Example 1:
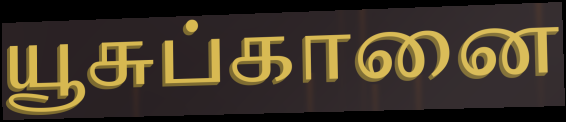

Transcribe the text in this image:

யூசுப்கானை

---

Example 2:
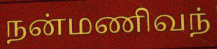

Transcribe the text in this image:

நன்மணிவந்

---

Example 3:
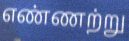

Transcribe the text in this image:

எண்ணற்று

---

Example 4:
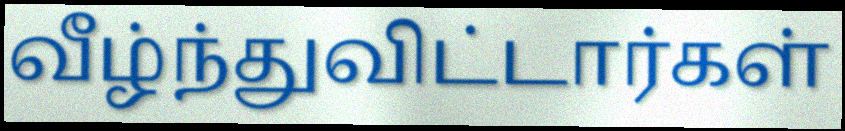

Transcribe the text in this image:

வீழ்ந்துவிட்டார்கள்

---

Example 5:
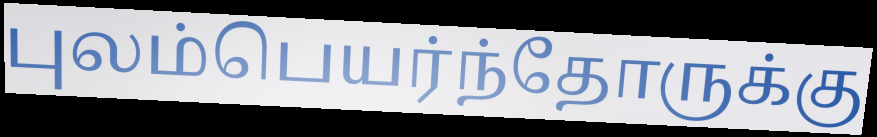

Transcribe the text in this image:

புலம்பெயர்ந்தோருக்கு